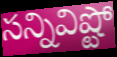
సన్నివిష్టో